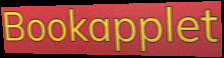
Bookapplet